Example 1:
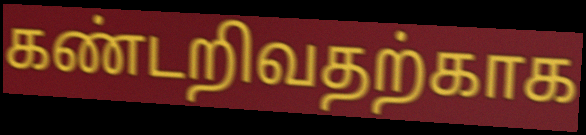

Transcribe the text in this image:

கண்டறிவதற்காக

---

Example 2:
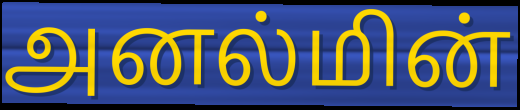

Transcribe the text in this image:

அனல்மின்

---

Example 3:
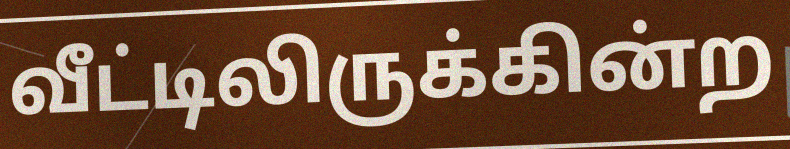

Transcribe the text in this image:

வீட்டிலிருக்கின்ற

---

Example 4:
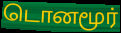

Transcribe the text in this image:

டொனமூர்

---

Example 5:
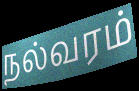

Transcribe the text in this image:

நல்வரம்